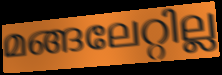
മങ്ങലേറ്റില്ല